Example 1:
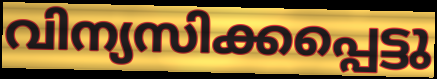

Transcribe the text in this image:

വിന്യസിക്കപ്പെട്ടു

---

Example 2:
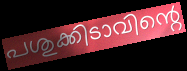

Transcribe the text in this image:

പശുക്കിടാവിന്റെ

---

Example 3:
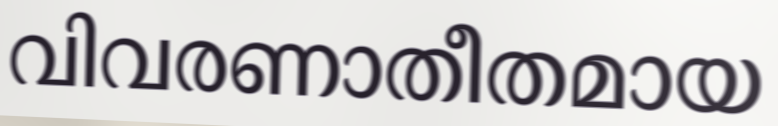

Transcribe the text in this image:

വിവരണാതീതമായ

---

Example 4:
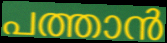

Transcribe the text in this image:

പത്താൻ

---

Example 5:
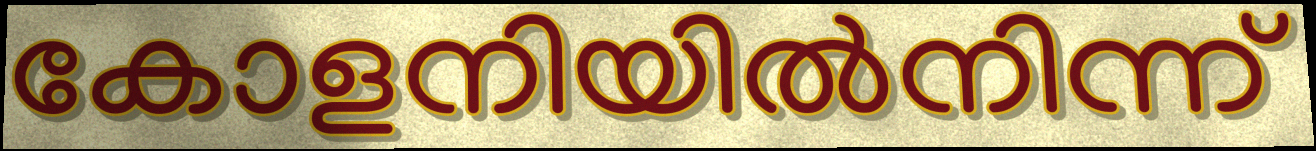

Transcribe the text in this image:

കോളനിയിൽനിന്ന്